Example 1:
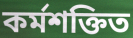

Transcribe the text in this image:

কৰ্মশক্তিত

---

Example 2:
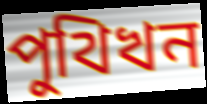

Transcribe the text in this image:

পুথিখন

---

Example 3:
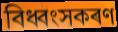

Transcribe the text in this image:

বিধ্বংসকৰণ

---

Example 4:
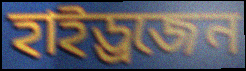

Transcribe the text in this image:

হাইড্ৰজেন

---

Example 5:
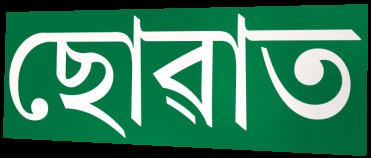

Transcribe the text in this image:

ছোৱাত